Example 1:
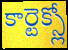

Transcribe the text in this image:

కార్టెక్స్లో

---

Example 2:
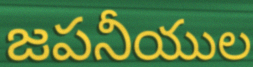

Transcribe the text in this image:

జపనీయుల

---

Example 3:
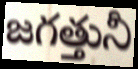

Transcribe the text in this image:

జగత్తునీ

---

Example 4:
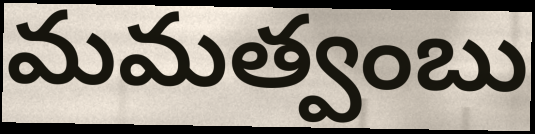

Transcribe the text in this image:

మమత్వంబు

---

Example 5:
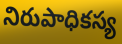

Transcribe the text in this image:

నిరుపాధికస్య